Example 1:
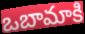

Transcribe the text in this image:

ఒబామాకి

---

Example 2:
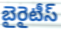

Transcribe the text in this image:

బైరైటీస్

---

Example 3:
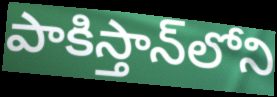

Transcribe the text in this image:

పాకిస్తాన్‌లోని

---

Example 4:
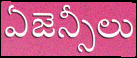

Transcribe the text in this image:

ఏజెన్సీలు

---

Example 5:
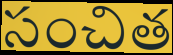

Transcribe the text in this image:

సంచిత